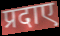
प्रदाए